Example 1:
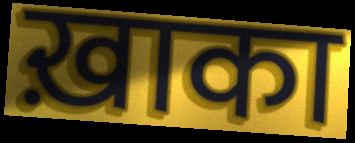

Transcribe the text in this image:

ख़ाका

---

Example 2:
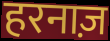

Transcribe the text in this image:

हरनाज़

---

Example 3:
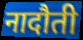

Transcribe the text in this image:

नादौती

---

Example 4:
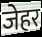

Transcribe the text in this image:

जेहर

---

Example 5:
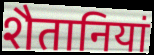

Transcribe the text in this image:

शैतानियां